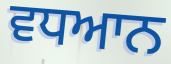
ਵਧਆਨ